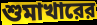
শুমাখারের